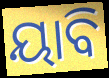
ୟାବି